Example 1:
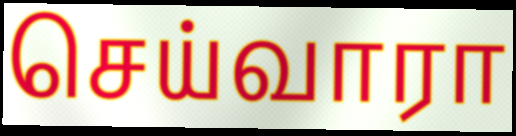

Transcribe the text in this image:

செய்வாரா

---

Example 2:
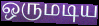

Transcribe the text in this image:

ஒருமடிய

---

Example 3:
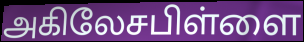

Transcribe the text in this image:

அகிலேசபிள்ளை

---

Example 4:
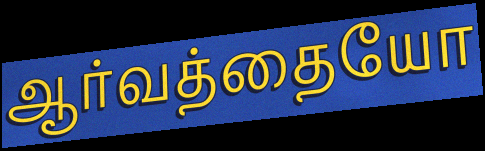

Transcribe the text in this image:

ஆர்வத்தையோ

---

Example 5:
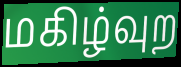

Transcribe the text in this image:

மகிழ்வுற